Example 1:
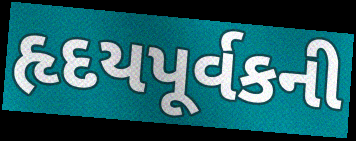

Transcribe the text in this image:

હૃદયપૂર્વકની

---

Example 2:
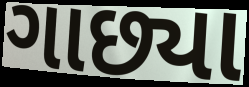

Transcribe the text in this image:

ગાછ્યા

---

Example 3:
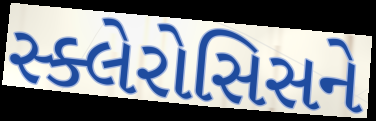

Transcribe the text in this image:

સ્ક્લેરોસિસને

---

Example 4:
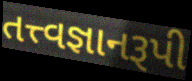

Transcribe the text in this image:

તત્ત્વજ્ઞાનરૂપી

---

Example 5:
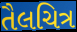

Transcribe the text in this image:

તૈલચિત્ર